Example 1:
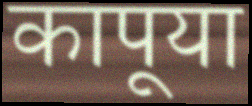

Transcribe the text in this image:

कापूया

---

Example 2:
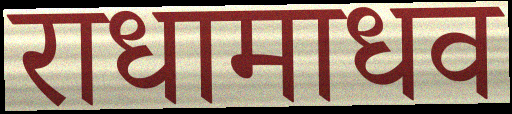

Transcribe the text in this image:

राधामाधव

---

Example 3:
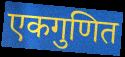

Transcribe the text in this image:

एकगुणित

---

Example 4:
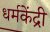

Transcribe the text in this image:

धर्मकेंद्री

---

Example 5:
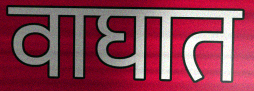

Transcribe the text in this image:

वाघात